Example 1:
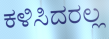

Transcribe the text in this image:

ಕಳಿಸಿದರಲ್ಲ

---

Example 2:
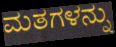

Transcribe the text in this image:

ಮತಗಳನ್ನು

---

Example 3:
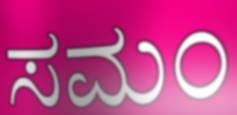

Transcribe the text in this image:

ಸಮಂ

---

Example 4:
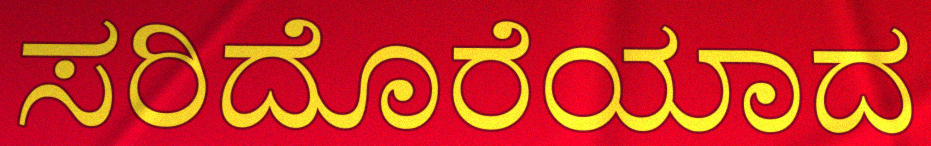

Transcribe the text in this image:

ಸರಿದೊರೆಯಾದ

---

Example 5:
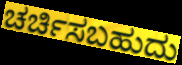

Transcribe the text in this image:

ಚರ್ಚಿಸಬಹುದು